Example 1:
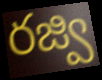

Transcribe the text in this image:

రజ్వి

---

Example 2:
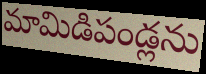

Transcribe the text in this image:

మామిడిపండ్లను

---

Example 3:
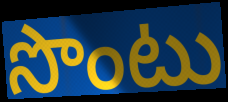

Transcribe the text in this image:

సొంటు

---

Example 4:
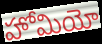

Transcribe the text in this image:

హోమియో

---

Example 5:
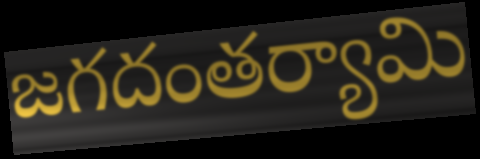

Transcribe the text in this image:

జగదంతర్యామి